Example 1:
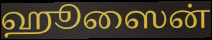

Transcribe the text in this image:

ஹூஸைன்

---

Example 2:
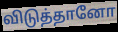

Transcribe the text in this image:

விடுத்தானோ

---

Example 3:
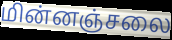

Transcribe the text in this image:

மின்னஞ்சலை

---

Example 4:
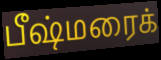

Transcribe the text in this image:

பீஷ்மரைக்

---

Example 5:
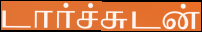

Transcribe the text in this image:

டார்ச்சுடன்